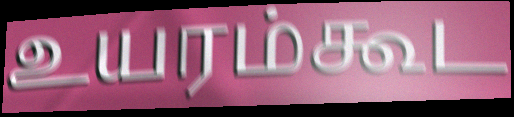
உயரம்கூட